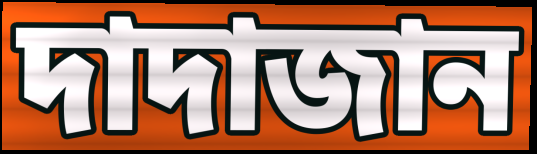
দাদাজান